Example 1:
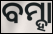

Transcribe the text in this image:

ବମ୍ହା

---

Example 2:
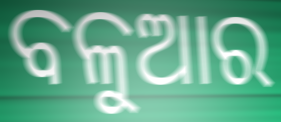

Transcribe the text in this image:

ବଳୁଆର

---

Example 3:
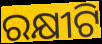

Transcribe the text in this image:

ରକ୍ଷୀଟି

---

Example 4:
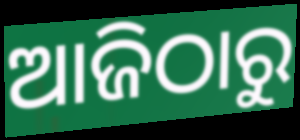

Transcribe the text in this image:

ଆଜିଠାରୁ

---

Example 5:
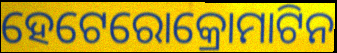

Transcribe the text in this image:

ହେଟେରୋକ୍ରୋମାଟିନ